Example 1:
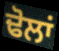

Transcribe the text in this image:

ਢੋਲਾਂ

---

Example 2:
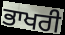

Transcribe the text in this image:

ਭਾਖਰੀ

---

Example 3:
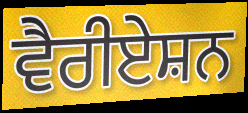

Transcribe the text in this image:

ਵੈਰੀਏਸ਼ਨ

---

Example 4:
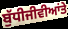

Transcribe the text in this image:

ਬੁੱਧੀਜੀਵੀਆਂਤੇ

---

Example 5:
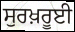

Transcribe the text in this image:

ਸੁਰਖ਼ਰੂਈ